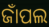
ଜାଁପଲ